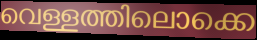
വെള്ളത്തിലൊക്കെ